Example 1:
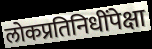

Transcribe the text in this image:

लोकप्रतिनिधींपेक्षा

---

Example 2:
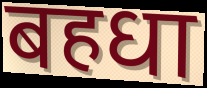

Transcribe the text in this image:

बहधा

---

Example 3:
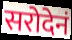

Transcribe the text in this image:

सरोदेनं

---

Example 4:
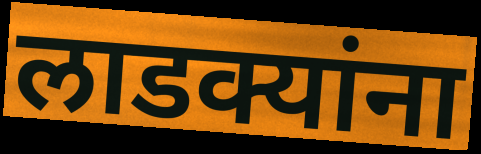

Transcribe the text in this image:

लाडक्यांना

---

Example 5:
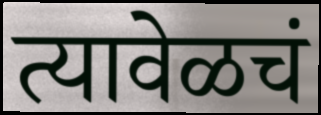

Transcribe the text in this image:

त्यावेळचं